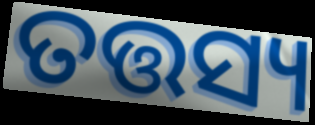
ତତ୍ତସ୍ୟ